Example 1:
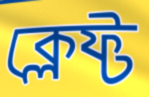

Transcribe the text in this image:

ক্লেফ্ট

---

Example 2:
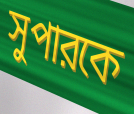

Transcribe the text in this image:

সুপারকে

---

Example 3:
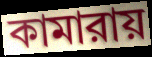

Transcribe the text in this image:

কামারায়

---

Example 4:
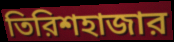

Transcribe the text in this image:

তিরিশহাজার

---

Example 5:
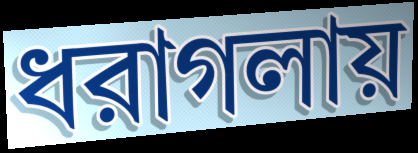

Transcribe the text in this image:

ধরাগলায়